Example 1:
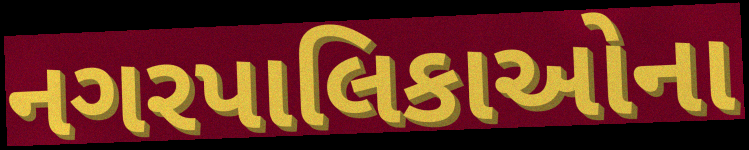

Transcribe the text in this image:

નગરપાલિકાઓના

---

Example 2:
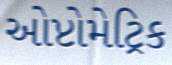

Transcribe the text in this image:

ઓપ્ટોમેટ્રિક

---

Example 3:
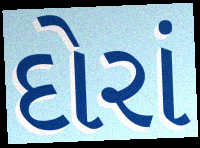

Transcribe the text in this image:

દોરાં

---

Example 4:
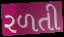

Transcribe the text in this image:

રળતી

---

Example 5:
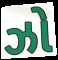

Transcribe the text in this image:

ઝો